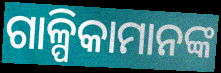
ଗାଳ୍ପିକାମାନଙ୍କ